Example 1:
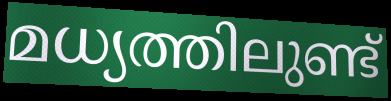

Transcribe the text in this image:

മധ്യത്തിലുണ്ട്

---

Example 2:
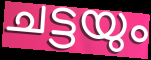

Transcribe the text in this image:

ചട്ടയും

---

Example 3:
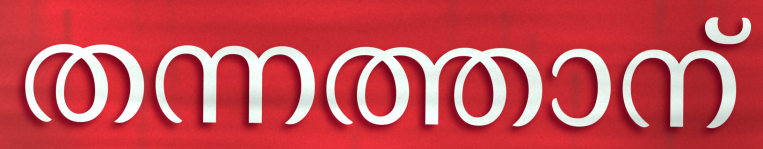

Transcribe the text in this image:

തന്നത്താന്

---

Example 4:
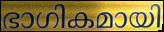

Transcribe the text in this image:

ഭാഗികമായി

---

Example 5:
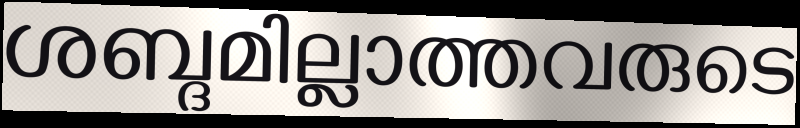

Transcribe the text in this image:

ശബ്ദമില്ലാത്തവരുടെ